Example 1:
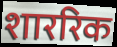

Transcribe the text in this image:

शाररिक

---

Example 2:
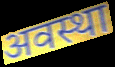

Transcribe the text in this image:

अवस्था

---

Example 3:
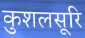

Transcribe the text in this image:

कुशलसूरि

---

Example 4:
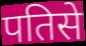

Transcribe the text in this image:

पतिसे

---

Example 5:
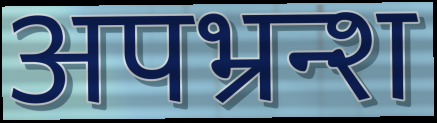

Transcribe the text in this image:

अपभ्रन्श